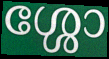
ശ്ശോ